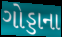
ગોડ્ડાના